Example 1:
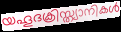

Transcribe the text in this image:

യഹൂദക്രിസ്ത്യാനികൾ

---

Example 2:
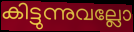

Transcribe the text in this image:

കിട്ടുന്നുവല്ലോ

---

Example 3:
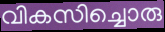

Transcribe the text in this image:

വികസിച്ചൊരു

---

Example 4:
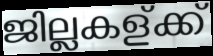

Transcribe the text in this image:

ജില്ലകള്ക്ക്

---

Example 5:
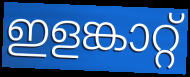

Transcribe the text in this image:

ഇളങ്കാറ്റ്